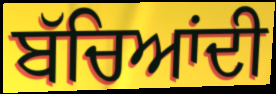
ਬੱਚਿਆਂਦੀ